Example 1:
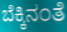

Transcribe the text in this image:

ಬೆಕ್ಕಿನಂತೆ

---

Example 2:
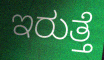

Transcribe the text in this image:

ಇರುತ್ತೆ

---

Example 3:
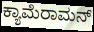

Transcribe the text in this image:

ಕ್ಯಾಮೆರಾಮನ್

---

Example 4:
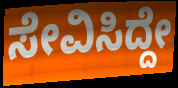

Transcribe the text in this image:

ಸೇವಿಸಿದ್ದೇ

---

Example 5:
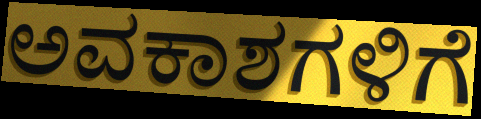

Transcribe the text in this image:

ಅವಕಾಶಗಳಿಗೆ